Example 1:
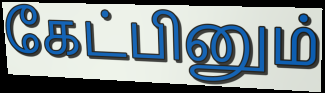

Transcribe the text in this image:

கேட்பினும்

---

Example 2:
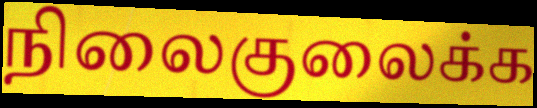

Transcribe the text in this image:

நிலைகுலைக்க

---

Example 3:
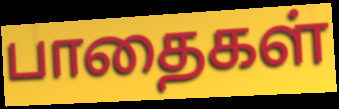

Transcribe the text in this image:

பாதைகள்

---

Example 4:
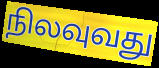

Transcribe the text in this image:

நிலவுவது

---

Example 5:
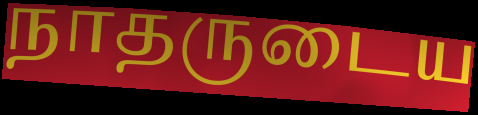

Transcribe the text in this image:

நாதருடைய